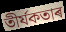
তীৰ্যকতাৰ